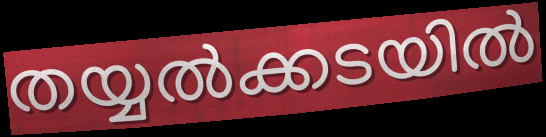
തയ്യൽക്കടയിൽ